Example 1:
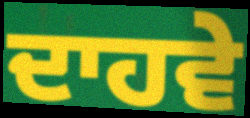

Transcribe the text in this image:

ਦਾਹਵੇ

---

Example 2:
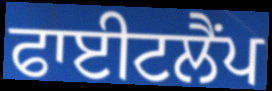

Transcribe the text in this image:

ਫਾਈਟਲੈਂਪ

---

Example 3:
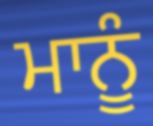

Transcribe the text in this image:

ਮਾਨੂੰ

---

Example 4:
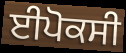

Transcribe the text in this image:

ਈਪੋਕਸੀ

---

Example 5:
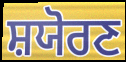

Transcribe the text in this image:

ਸ਼ਯੋਰਣ